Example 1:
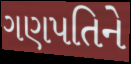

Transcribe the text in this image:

ગણપતિને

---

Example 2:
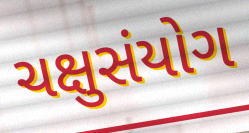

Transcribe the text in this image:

ચક્ષુસંયોગ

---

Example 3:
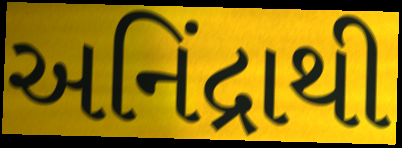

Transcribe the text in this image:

અનિંદ્રાથી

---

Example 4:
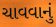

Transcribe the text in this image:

ચાવવાનું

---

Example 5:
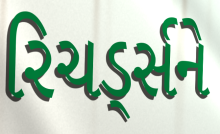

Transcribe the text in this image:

રિચર્ડ્સને